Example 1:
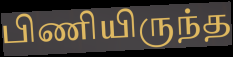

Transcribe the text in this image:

பிணியிருந்த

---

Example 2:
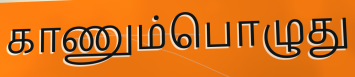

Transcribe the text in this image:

காணும்பொழுது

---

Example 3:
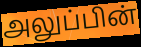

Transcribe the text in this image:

அலுப்பின்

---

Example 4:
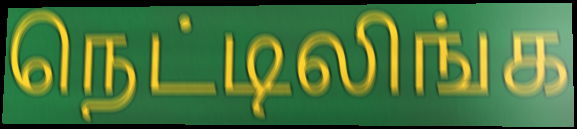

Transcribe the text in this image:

நெட்டிலிங்க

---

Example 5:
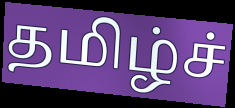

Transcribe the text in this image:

தமிழ்ச்